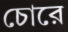
চোরে